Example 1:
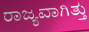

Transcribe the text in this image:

ರಾಜ್ಯವಾಗಿತ್ತು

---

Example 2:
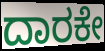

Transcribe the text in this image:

ದಾರಕೇ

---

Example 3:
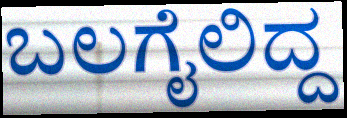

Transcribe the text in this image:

ಬಲಗೈಲಿದ್ದ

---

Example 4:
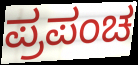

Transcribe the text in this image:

ಪ್ರಪಂಚ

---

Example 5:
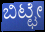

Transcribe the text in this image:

ಬಿಟ್ಟೇ